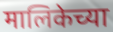
मालिकेच्या